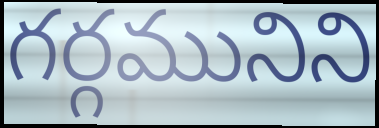
గర్గమునిని